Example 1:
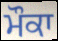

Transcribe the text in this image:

ਮੌਕਾ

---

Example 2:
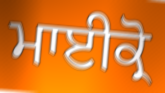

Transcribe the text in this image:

ਮਾਈਕ੍ਰੋ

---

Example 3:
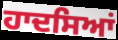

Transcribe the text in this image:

ਹਾਦਸਿਆਂ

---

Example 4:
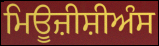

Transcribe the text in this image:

ਮਿਊਜ਼ੀਸ਼ੀਅੰਸ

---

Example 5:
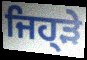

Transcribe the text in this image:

ਜਿਹ੍ੜੇ